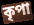
কৃপা